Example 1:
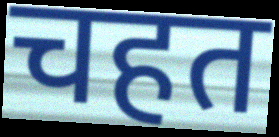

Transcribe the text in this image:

चहत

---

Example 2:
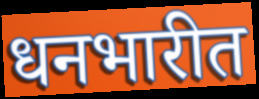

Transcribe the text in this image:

धनभारीत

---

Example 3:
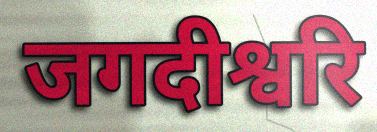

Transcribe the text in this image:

जगदीश्वरि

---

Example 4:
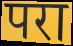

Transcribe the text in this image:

परा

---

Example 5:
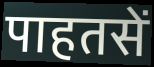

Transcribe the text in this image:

पाहतसें